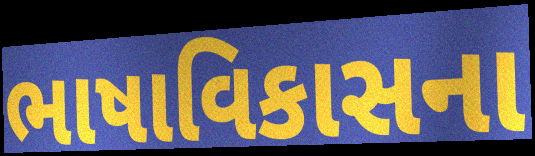
ભાષાવિકાસના